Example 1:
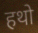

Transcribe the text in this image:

हथो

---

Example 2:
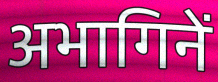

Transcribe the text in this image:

अभागिनें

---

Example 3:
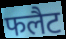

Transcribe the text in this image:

फलैट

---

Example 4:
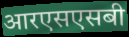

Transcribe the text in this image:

आरएसएसबी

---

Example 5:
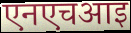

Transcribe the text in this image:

एनएचआइ